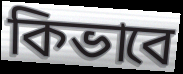
কিভাবে